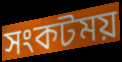
সংকটময়